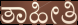
ತಾಹೀತಿ